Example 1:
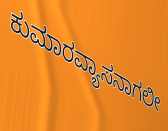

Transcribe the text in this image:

ಕುಮಾರವ್ಯಾಸನಾಗಲೀ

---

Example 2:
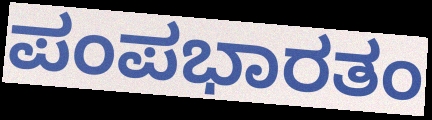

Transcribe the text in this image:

ಪಂಪಭಾರತಂ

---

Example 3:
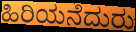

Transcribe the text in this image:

ಹಿರಿಯನೆದುರು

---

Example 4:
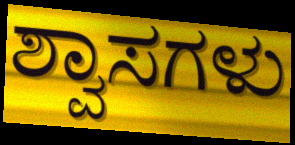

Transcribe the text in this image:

ಶ್ವಾಸಗಳು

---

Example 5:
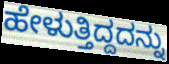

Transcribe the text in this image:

ಹೇಳುತ್ತಿದ್ದದನ್ನು